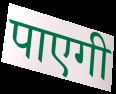
पाएगी